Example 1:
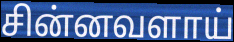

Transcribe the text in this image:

சின்னவளாய்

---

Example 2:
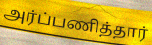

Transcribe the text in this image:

அர்ப்பணித்தார்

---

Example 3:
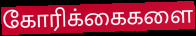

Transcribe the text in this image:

கோரிக்கைகளை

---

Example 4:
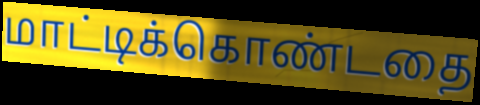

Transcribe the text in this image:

மாட்டிக்கொண்டதை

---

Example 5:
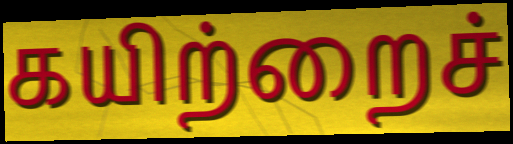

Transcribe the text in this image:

கயிற்றைச்